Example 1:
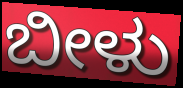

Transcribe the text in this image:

ಬೀಳು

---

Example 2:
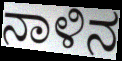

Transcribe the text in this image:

ನಾಳಿನ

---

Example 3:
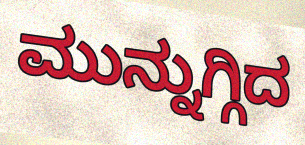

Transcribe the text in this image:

ಮುನ್ನುಗ್ಗಿದ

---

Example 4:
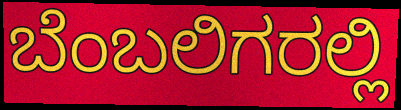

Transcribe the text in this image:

ಬೆಂಬಲಿಗರಲ್ಲಿ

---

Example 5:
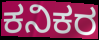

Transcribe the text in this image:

ಕನಿಕರ